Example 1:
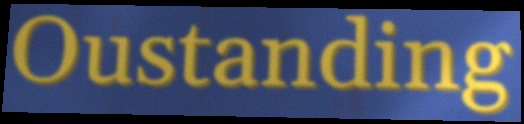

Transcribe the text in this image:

Oustanding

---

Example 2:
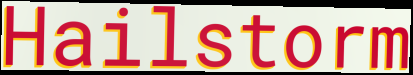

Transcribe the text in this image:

Hailstorm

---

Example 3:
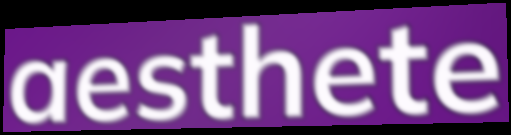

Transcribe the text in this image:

aesthete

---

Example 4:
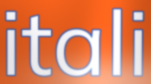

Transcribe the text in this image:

itali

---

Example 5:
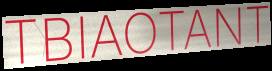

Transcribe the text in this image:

TBIAOTANT